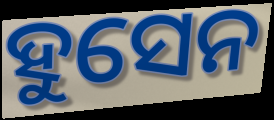
ହୁସେନ